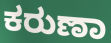
ಕರುಣಾ